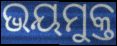
ଭୟମୁକ୍ତ